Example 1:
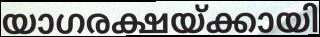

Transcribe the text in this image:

യാഗരക്ഷയ്ക്കായി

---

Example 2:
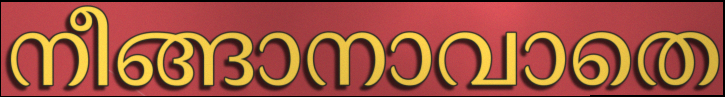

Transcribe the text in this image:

നീങ്ങാനാവാതെ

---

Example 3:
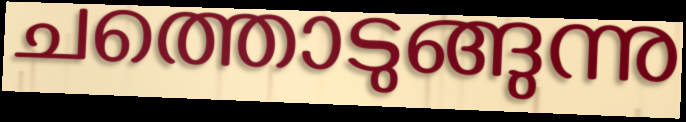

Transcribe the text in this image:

ചത്തൊടുങ്ങുന്നു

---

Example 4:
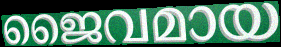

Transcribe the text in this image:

ജൈവമായ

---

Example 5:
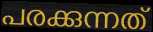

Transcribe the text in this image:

പരക്കുന്നത്